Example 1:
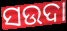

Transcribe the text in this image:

ସଉଦା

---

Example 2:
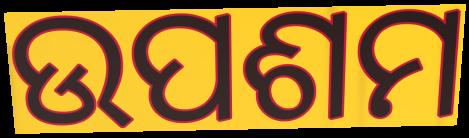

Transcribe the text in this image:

ଉପଶମ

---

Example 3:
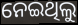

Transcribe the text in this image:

ନେଇଥିଲୁ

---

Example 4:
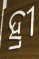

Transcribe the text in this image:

ହ୍ରୀ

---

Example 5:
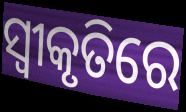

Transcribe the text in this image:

ସ୍ବୀକୃତିରେ